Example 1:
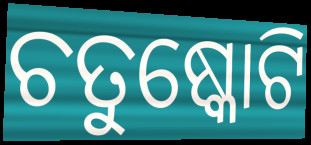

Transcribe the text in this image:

ଚତୁଷ୍କୋଟି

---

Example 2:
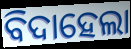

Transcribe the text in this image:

ବିଦାହେଲା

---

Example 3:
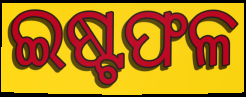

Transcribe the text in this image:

ଇଷ୍ଟଫଳ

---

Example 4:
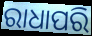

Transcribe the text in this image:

ରାଧାପରି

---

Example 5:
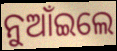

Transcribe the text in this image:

ନୁଆଁଇଲେ